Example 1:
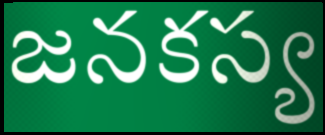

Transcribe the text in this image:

జనకస్య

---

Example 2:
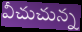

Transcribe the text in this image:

వీచుచున్న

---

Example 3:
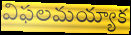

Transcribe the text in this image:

విఫలమయ్యాక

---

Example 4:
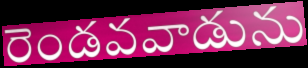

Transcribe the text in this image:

రెండవవాడును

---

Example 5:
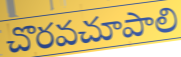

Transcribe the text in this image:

చొరవచూపాలి